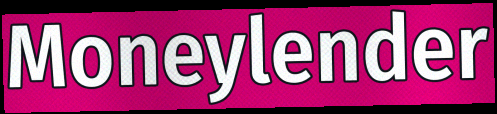
Moneylender